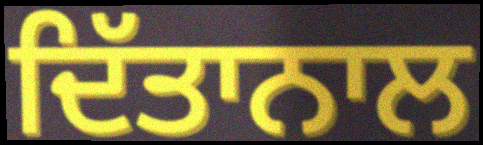
ਦਿੱਤਾਨਾਲ